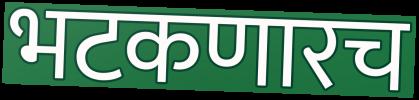
भटकणारच